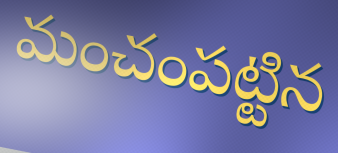
మంచంపట్టిన